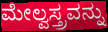
ಮೇಲ್ವಸ್ತ್ರವನ್ನು